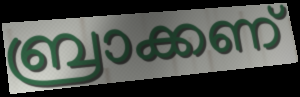
ബ്രാക്കണ്